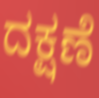
ದಕ್ಷಣೆ